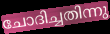
ചോദിച്ചതിന്നു